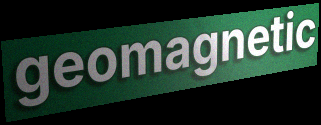
geomagnetic